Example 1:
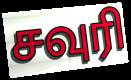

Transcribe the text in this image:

சவுரி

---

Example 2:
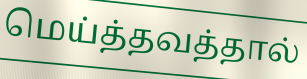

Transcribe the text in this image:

மெய்த்தவத்தால்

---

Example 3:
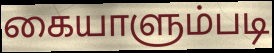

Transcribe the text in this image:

கையாளும்படி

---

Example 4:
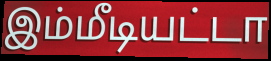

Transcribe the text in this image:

இம்மீடியட்டா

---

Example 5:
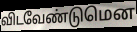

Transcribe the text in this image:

விடவேண்டுமென